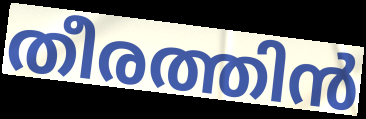
തീരത്തിൻ